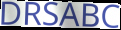
DRSABC